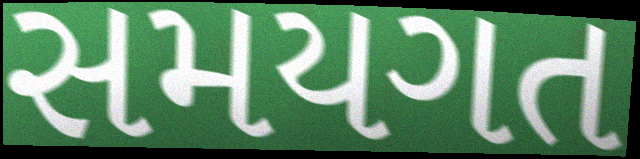
સમયગત